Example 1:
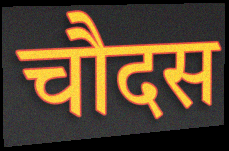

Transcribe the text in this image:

चौदस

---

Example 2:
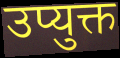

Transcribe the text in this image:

उप्युक्त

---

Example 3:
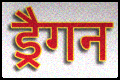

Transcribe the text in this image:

ड्रैगन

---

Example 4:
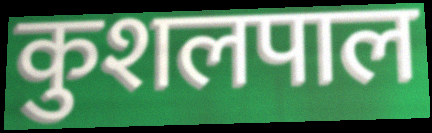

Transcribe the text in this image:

कुशलपाल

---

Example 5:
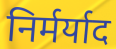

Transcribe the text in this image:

निर्मर्याद